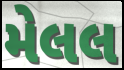
મેલલ